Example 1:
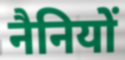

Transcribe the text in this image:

नैनियों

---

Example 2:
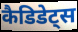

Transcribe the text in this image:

कैडिडेट्स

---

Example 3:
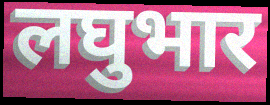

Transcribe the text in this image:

लघुभार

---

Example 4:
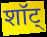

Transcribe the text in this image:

शॉट्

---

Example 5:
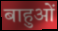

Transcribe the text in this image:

बाहुओं